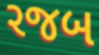
રજબ